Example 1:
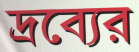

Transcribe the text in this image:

দ্রব্যের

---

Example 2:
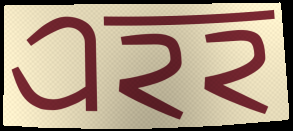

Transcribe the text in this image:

এহহ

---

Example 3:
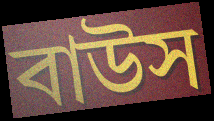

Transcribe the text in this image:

বাউস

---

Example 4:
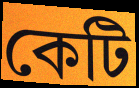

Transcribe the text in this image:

কেটি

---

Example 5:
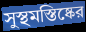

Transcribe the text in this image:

সুস্থমস্তিষ্কের